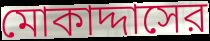
মোকাদ্দাসের